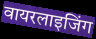
वायरलाइजिंग